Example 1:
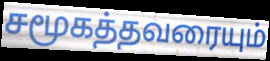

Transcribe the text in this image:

சமூகத்தவரையும்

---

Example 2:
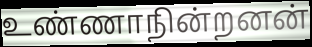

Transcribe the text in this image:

உண்ணாநின்றனன்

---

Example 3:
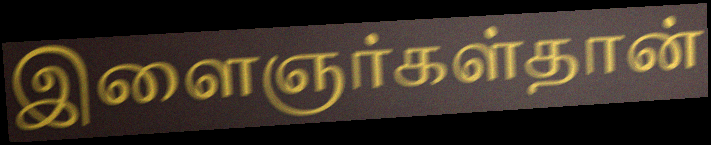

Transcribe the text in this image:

இளைஞர்கள்தான்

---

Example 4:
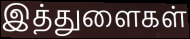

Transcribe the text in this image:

இத்துளைகள்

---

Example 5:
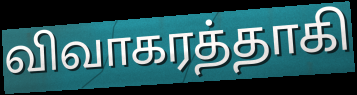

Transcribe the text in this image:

விவாகரத்தாகி